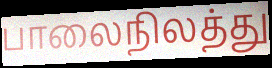
பாலைநிலத்து